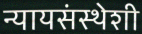
न्यायसंस्थेशी